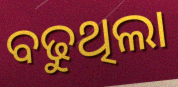
ବଢୁଥିଲା